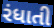
રંધાતી